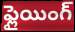
ఫ్లైయింగ్